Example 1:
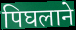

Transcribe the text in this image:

पिघलाने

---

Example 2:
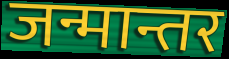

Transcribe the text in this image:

जन्मान्तर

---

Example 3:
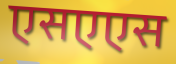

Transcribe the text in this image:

एसएएस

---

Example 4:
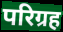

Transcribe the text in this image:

परिग्रह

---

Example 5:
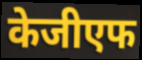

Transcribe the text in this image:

केजीएफ